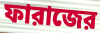
ফারাজের